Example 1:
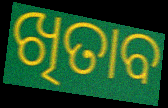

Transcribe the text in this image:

ଖିତାବ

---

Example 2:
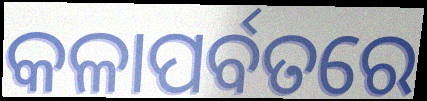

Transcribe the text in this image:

କଳାପର୍ବତରେ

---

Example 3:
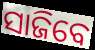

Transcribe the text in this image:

ସାଜିବେ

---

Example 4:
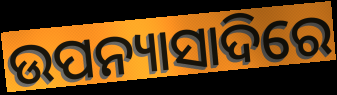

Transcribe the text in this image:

ଉପନ୍ୟାସାଦିରେ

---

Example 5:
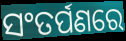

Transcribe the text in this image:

ସଂତର୍ପଣରେ